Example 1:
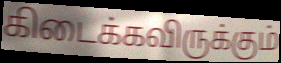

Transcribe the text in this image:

கிடைக்கவிருக்கும்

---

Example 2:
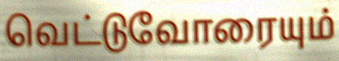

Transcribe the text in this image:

வெட்டுவோரையும்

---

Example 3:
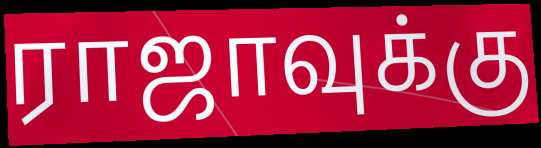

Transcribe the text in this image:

ராஜாவுக்கு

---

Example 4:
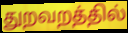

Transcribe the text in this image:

துறவறத்தில்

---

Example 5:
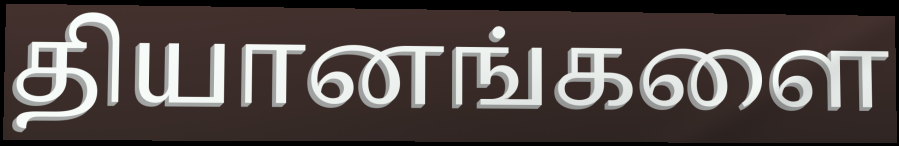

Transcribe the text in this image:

தியானங்களை